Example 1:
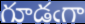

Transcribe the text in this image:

గూడఁగా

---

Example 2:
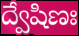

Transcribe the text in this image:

ద్వేషిణః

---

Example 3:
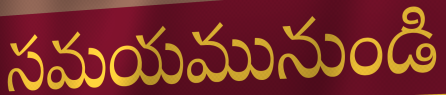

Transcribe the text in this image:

సమయమునుండి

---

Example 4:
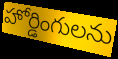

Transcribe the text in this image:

హోర్డింగులను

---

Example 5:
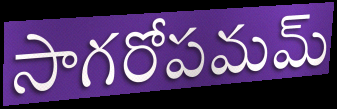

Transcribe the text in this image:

సాగరోపమమ్